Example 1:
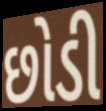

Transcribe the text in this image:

છોડી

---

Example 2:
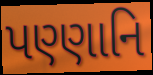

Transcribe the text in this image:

પણ્ણાનિ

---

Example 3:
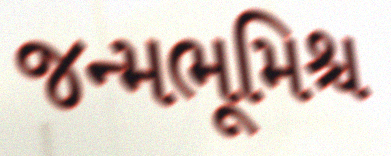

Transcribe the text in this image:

જન્મભૂમિશ્ચ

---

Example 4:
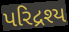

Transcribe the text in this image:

પરિદ્રશ્ય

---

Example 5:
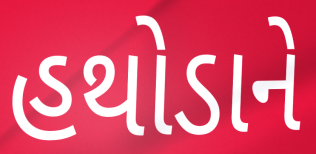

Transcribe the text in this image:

હથોડાને